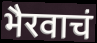
भैरवाचं